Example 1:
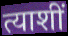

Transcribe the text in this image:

त्याशीं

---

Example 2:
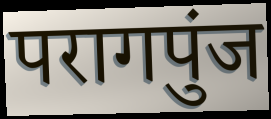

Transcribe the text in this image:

परागपुंज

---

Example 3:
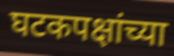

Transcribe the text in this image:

घटकपक्षांच्या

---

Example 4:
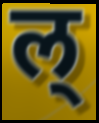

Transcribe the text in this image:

ल्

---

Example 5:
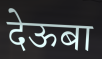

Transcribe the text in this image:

देऊबा